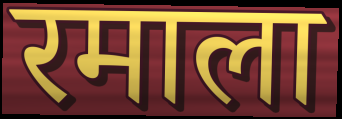
रमाला